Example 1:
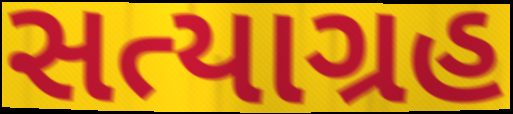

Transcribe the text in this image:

સત્યાગ્રહ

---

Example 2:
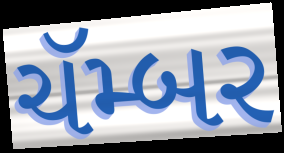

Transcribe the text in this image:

ચૅમ્બર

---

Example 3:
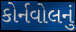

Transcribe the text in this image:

કોર્નવોલનું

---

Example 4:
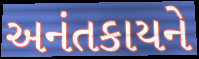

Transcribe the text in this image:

અનંતકાયને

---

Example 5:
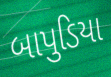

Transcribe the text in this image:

બાપુડિયા